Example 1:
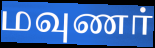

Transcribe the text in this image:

மவுணர்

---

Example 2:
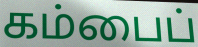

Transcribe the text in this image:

கம்பைப்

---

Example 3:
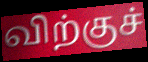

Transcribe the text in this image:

விற்குச்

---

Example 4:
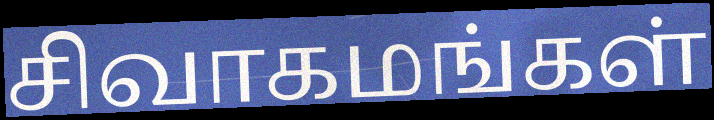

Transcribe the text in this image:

சிவாகமங்கள்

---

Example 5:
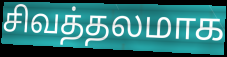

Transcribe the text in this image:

சிவத்தலமாக